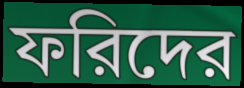
ফরিদের